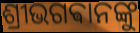
ଶ୍ରୀଭଗଵାନଙ୍କୁ